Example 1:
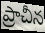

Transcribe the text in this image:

ప్రాచీన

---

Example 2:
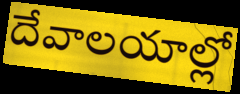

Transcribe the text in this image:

దేవాలయాల్లో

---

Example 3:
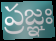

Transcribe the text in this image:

ప్రజ్ఞః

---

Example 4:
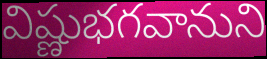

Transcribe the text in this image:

విష్ణుభగవానుని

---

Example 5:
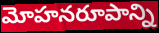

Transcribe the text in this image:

మోహనరూపాన్ని